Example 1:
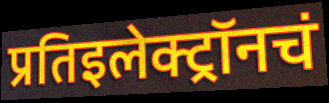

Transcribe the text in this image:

प्रतिइलेक्ट्रॉनचं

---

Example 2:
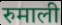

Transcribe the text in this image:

रुमाली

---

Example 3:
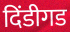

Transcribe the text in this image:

दिंडीगड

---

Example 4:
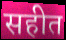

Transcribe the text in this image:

सहीत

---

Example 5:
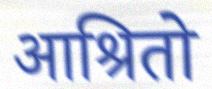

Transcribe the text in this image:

आश्रितो